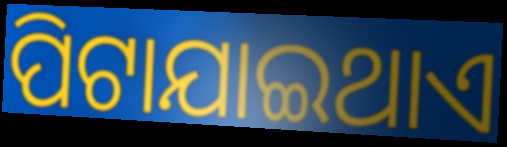
ପିଟାଯାଇଥାଏ